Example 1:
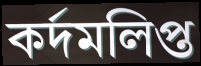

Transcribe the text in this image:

কর্দমলিপ্ত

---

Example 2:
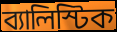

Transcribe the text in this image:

ব্যালিস্টিক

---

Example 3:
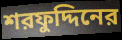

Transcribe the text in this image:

শরফুদ্দিনের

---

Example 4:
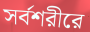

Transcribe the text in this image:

সর্বশরীরে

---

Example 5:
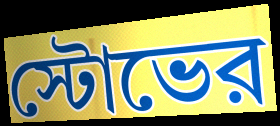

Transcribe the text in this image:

স্টোভের